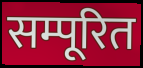
सम्पूरित